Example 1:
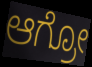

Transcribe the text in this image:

ಆಗ್ರೋ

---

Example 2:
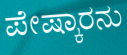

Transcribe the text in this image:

ಪೇಷ್ಕಾರನು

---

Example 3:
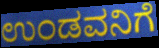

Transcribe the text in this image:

ಉಂಡವನಿಗೆ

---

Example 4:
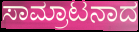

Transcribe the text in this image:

ಸಾಮ್ರಾಟನಾದ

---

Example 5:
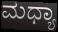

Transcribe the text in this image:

ಮಧ್ಯಾ